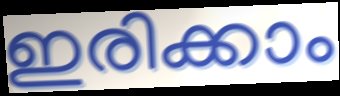
ഇരിക്കാം